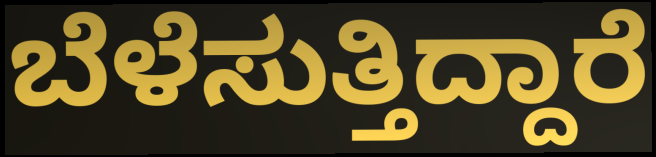
ಬೆಳೆಸುತ್ತಿದ್ದಾರೆ